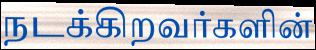
நடக்கிறவர்களின்